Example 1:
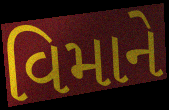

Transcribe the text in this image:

વિમાને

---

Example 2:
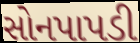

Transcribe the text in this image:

સોનપાપડી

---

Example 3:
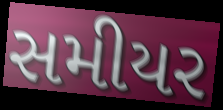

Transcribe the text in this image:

સમીયર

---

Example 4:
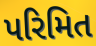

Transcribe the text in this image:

પરિમિત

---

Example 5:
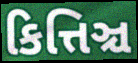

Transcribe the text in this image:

કિત્તિઞ્ચ